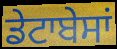
ਡੇਟਾਬੇਸਾਂ